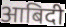
आबिदी